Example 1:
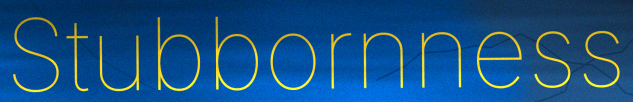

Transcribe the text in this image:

Stubbornness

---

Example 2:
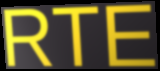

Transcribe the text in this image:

RTE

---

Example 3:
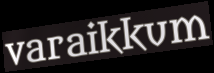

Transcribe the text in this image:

varaikkum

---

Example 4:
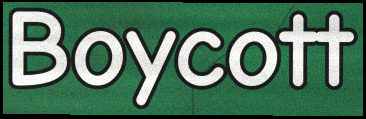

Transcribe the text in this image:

Boycott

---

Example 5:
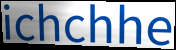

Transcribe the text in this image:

ichchhe